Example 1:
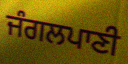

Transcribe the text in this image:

ਜੰਗਲਪਾਣੀ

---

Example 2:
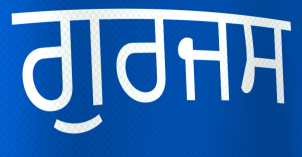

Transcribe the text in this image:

ਗੁਰਜਸ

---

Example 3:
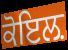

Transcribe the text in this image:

ਕੋਇਲ਼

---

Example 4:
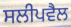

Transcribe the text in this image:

ਸਲੀਪਵੈਲ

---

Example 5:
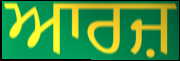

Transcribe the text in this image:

ਆਰਜ਼